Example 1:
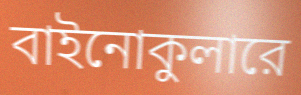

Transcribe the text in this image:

বাইনোকুলারে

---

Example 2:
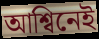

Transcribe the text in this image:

আশ্বিনেই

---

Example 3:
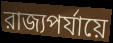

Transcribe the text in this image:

রাজ্যপর্যায়ে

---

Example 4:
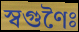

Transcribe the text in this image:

স্বগুণৈঃ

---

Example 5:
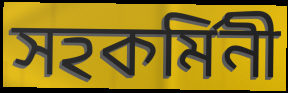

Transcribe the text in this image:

সহকর্মিনী